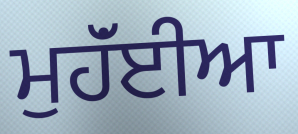
ਮੁਹੱਂਈਆ